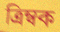
ত্রিম্বক